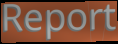
Report